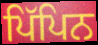
ਪਿੱਪਿਨ